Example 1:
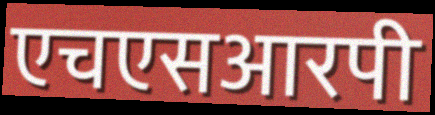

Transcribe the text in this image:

एचएसआरपी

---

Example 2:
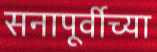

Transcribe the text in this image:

सनापूर्वीच्या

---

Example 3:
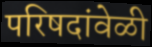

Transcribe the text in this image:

परिषदांवेळी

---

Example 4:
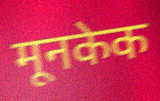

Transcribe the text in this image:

मूनकेक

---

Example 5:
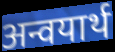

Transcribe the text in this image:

अन्वयार्थ